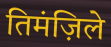
तिमंज़िले